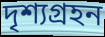
দৃশ্যগ্ৰহন